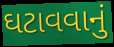
ઘટાવવાનું